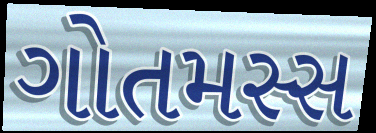
ગોતમસ્સ